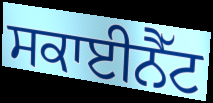
ਸਕਾਈਨੈੱਟ